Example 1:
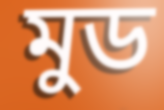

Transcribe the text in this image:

মুড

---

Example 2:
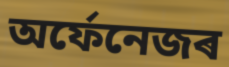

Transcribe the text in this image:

অৰ্ফেনেজৰ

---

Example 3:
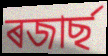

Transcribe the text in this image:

ৰজাৰ্ছ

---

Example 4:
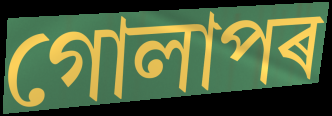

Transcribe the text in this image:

গোলাপৰ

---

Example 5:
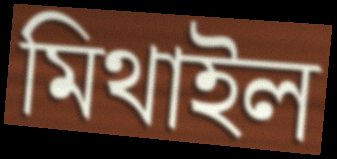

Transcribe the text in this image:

মিথাইল